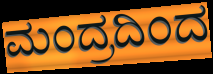
ಮಂದ್ರದಿಂದ